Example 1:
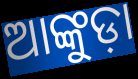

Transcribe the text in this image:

ଆଙ୍କୁଡ଼ା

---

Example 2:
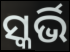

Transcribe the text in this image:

ସ୍କର୍ଭି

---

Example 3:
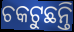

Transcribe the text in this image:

ଚକଟୁଛନ୍ତି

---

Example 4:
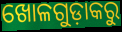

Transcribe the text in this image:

ଖୋଳଗୁଡ଼ାକରୁ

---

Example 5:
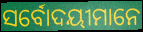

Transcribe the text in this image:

ସର୍ବୋଦୟୀମାନେ